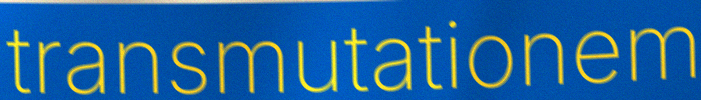
transmutationem